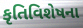
કૃતિવિશેષના